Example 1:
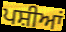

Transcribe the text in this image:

ਪਸ਼ੀਆਂ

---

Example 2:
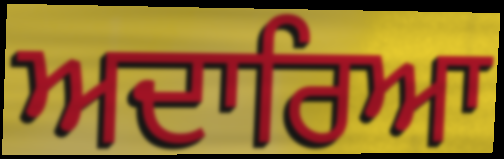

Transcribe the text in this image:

ਅਦਾਰਿਆ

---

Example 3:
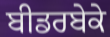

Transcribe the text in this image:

ਬੀਡਰਬੇਕੇ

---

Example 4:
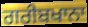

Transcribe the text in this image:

ਗਰੀਬਖਾਨਾ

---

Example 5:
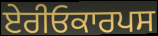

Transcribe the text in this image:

ਏਰੀਓਕਾਰਪਸ